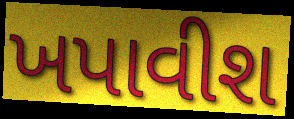
ખપાવીશ